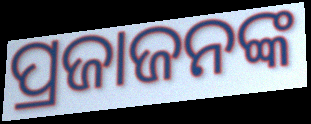
ପ୍ରଜାଜନଙ୍କ